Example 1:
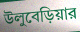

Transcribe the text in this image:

উলুবেড়িয়ার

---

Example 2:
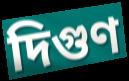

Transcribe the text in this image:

দিগুণ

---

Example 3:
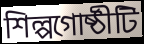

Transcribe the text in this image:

শিল্পগোষ্ঠীটি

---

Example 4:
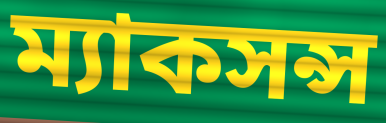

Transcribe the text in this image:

ম্যাকসন্স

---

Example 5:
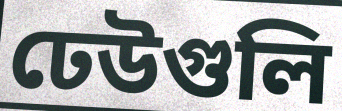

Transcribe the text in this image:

ঢেউগুলি